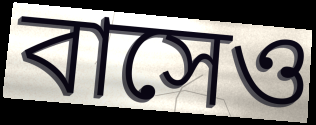
বাসেও